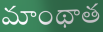
మాంథాత